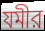
যমীর